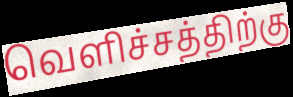
வெளிச்சத்திற்கு